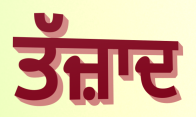
ਤੱਜ਼ਾਦ